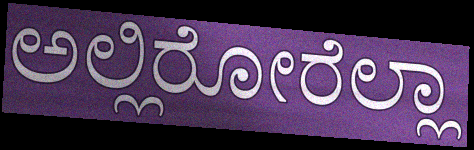
ಅಲ್ಲಿರೋರೆಲ್ಲಾ